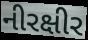
નીરક્ષીર